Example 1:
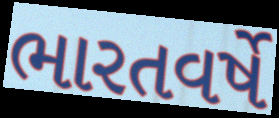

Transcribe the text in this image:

ભારતવર્ષે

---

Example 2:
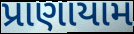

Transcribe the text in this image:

પ્રાણાયામ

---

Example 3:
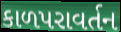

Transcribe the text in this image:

કાળપરાવર્તન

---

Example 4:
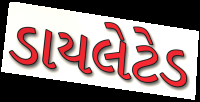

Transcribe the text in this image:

ડાયલેટેડ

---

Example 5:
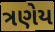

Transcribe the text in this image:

ત્રણેય